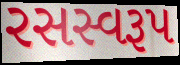
રસસ્વરૂપ